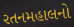
રતનમહાલનો